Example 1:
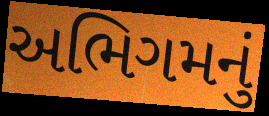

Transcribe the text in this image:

અભિગમનું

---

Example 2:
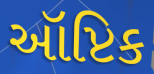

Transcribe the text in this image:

ઑપ્ટિક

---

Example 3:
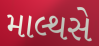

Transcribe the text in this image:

માલ્થસે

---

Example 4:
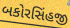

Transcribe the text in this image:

બકોરસિંહજી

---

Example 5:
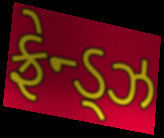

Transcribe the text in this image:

ફ્રેન્ડ્ઝ